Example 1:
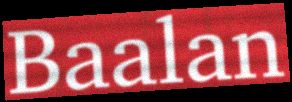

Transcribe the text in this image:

Baalan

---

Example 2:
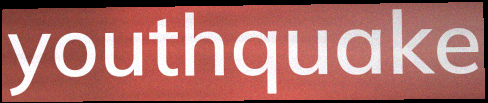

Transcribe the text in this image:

youthquake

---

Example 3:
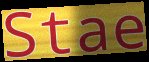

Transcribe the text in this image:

Stae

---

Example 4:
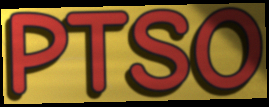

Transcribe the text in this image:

PTSO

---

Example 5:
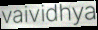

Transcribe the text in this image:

vaividhya